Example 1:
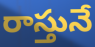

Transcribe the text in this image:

రాస్తునే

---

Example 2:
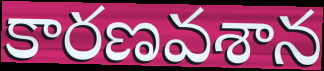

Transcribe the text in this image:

కారణవశాన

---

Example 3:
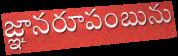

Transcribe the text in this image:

జ్ఞానరూపంబును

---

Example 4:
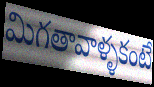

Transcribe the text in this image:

మిగతావాళ్ళకంటే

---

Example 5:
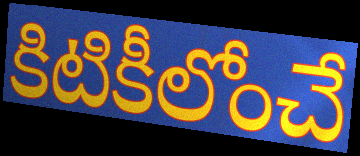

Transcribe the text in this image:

కిటికీలోంచే